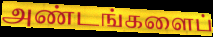
அண்டங்களைப்